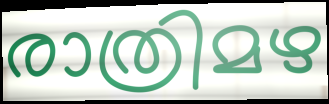
രാത്രിമഴ